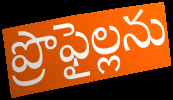
ప్రొఫైల్లను